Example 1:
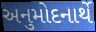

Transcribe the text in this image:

અનુમોદનાર્થે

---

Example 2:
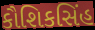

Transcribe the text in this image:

કૌશિકસિંહ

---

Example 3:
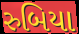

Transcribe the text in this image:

રુબિયા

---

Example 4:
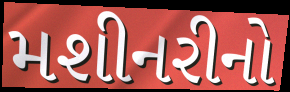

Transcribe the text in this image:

મશીનરીનો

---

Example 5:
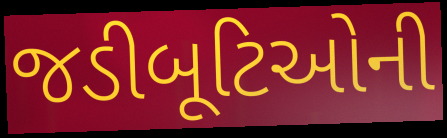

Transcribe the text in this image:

જડીબૂટિઓની